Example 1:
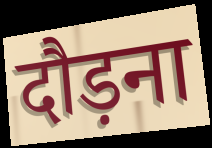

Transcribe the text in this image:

दौड़ना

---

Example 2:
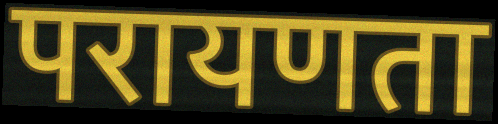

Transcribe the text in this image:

परायणता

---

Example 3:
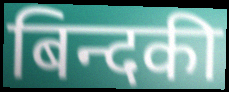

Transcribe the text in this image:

बिन्दकी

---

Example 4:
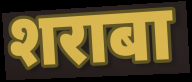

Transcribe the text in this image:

शराबा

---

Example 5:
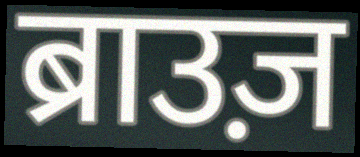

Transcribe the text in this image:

ब्राउज़